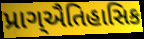
પ્રાગ્ઐતિહાસિક